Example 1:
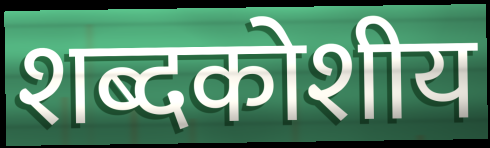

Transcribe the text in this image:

शब्दकोशीय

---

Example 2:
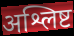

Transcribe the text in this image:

अश्लिष्ट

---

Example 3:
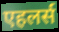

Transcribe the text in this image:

एहलर्स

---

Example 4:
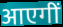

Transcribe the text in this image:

आएगीं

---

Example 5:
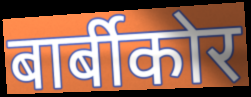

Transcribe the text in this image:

बार्बीकोर